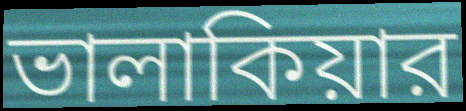
ভালাকিয়ার